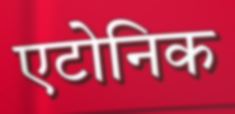
एटोनिक